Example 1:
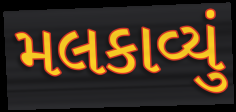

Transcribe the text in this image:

મલકાવ્યું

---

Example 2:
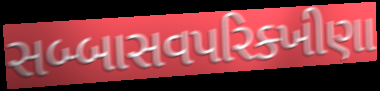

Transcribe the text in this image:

સબ્બાસવપરિક્ખીણા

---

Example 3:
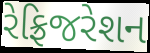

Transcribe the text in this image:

રેફ્રિજરેશન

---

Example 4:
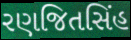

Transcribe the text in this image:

રણજિતસિંહ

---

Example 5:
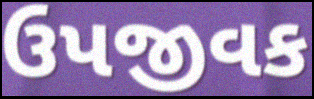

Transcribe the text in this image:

ઉપજીવક